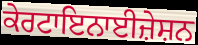
ਕੇਰਟਾਇਨਾਈਜ਼ੇਸ਼ਨ